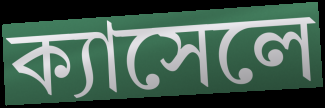
ক্যাসেলে